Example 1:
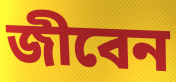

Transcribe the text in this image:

জীবেন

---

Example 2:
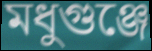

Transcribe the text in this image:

মধুগুঞ্জে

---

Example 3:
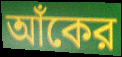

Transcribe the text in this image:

আঁকের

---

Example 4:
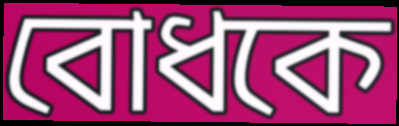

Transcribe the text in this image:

বোধকে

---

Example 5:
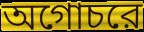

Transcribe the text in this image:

অগোচরে